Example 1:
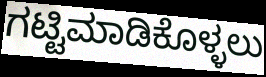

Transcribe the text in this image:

ಗಟ್ಟಿಮಾಡಿಕೊಳ್ಳಲು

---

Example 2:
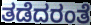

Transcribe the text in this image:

ತಡೆದರಂತೆ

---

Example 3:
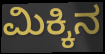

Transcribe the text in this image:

ಮಿಕ್ಕಿನ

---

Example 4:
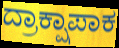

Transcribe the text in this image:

ದ್ರಾಕ್ಷಾಪಾಕ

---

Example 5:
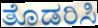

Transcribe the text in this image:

ತೊಡರಿಸಿ